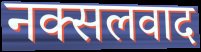
नक्सलवाद